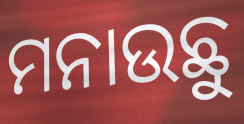
ମନାଉଛୁ